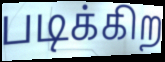
படிக்கிற